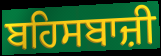
ਬਹਿਸਬਾਜ਼ੀ